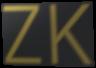
ZK